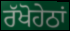
ਰੱਖੋਹੇਠਾਂ